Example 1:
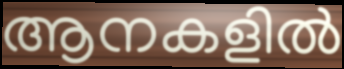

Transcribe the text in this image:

ആനകളിൽ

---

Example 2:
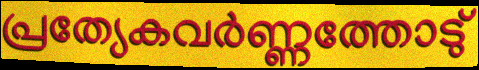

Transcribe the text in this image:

പ്രത്യേകവർണ്ണത്തോടു്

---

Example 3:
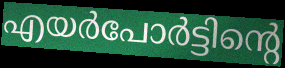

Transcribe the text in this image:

എയർപോർട്ടിന്റെ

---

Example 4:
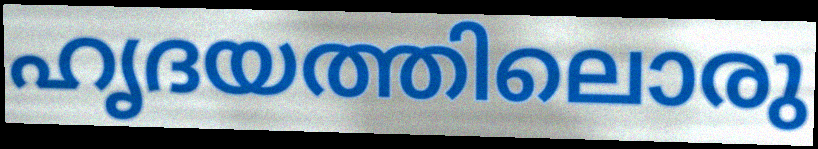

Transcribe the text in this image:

ഹൃദയത്തിലൊരു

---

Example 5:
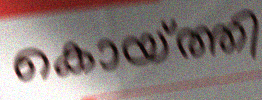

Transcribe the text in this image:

കൊയ്‌ത്തി